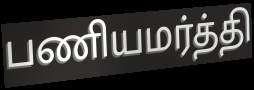
பணியமர்த்தி